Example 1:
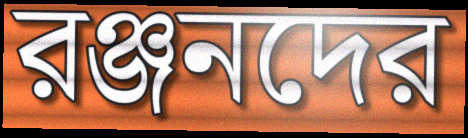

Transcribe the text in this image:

রঞ্জনদের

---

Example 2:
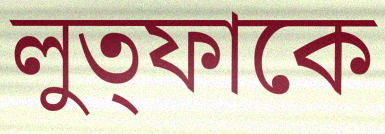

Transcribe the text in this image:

লুত্ফাকে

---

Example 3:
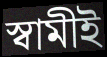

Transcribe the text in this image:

স্বামীই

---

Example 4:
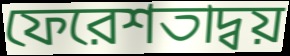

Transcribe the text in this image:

ফেরেশতাদ্বয়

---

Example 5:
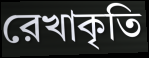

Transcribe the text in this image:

রেখাকৃতি